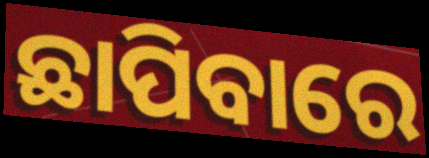
ଛାପିବାରେ